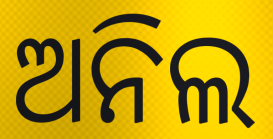
ଅନିଲ